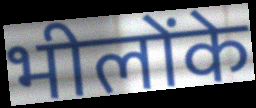
भीलोंके